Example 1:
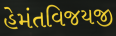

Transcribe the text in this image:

હેમંતવિજયજી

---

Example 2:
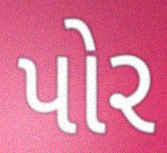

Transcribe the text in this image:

પોર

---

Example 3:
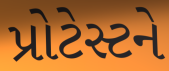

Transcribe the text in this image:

પ્રોટેસ્ટને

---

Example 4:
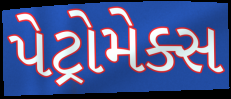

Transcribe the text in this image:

પેટ્રોમેક્સ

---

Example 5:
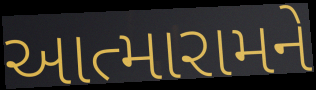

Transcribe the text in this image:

આત્મારામને